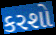
કરશો